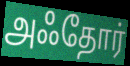
அஃதோர்